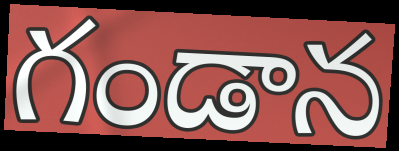
గండాన